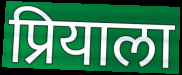
प्रियाला